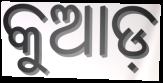
କୁଆଡ଼